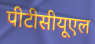
पीटीसीयूएल